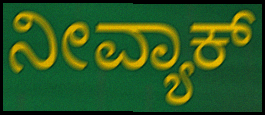
ನೀವ್ಯಾಕ್